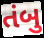
તંબુ